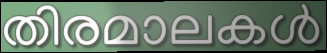
തിരമാലകൾ